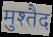
मुश्तैद